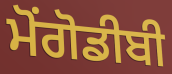
ਮੋਂਗੋਡੀਬੀ